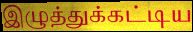
இழுத்துக்கட்டிய